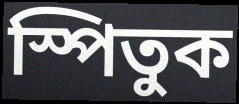
স্পিতুক